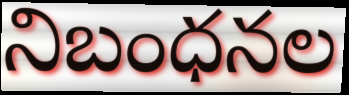
నిబంధనల